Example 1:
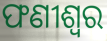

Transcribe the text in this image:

ଫଣୀଶ୍ୱର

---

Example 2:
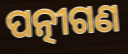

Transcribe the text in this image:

ପତ୍ନୀଗଣ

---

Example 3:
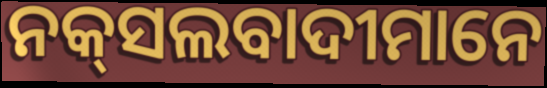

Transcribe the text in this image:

ନକ୍‌ସଲବାଦୀମାନେ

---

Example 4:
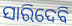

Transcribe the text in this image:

ସାରିଦେବି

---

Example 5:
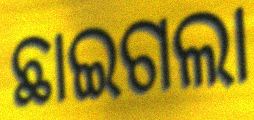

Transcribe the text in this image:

ଛାଇଗଲା